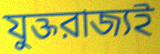
যুক্তরাজ্যই